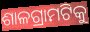
ଶାଳଗ୍ରାମଟିକୁ